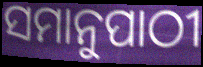
ସମାନୁପାଠୀ